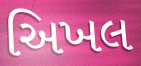
અિખલ